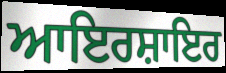
ਆਇਰਸ਼ਾਇਰ